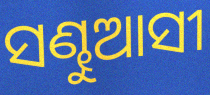
ସଣ୍ଢୁଆସୀ